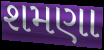
શમણા